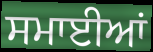
ਸਮਾਈਆਂ